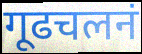
गूढचलनं